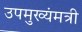
उपमुख्यंमत्री